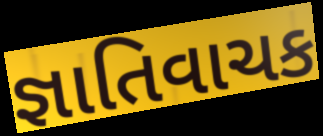
જ્ઞાતિવાચક